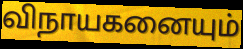
விநாயகனையும்